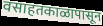
वसाहतकाळापासून